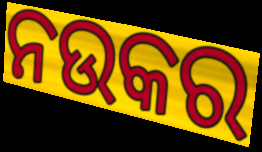
ନଉକର